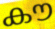
കൗ